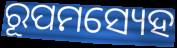
ରୂପମସ୍ୟେହ